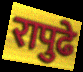
रापुढे